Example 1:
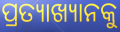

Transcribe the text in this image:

ପ୍ରତ୍ୟାଖ୍ୟାନକୁ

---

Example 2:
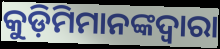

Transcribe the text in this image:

କୁଡ଼ିମିମାନଙ୍କଦ୍ୱାରା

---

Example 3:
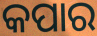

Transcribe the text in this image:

କପାର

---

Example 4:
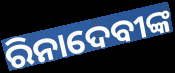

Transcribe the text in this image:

ରିନାଦେବୀଙ୍କ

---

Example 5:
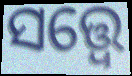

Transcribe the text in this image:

ସତ୍ତ୍ବେ